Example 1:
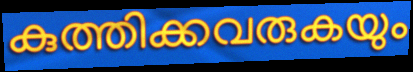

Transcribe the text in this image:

കുത്തിക്കവരുകയും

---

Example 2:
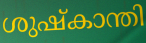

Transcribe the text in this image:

ശുഷ്കാന്തി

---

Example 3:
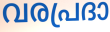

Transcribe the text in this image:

വരപ്രദാ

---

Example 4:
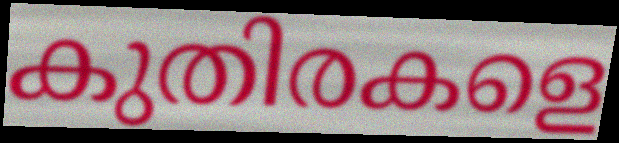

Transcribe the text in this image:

കുതിരകളെ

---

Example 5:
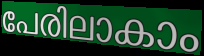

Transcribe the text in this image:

പേരിലാകാം